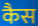
कैस